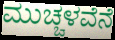
ಮುಚ್ಚಳವೆನೆ